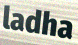
ladha